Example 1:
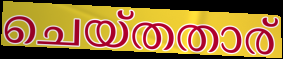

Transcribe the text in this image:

ചെയ്തതാര്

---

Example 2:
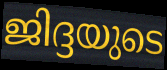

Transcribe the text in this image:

ജിദ്ദയുടെ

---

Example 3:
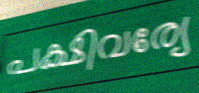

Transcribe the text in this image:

പക്ഷിവര്യേ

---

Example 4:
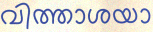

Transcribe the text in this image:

വിത്താശയാ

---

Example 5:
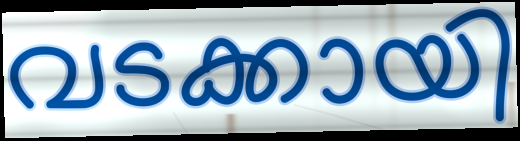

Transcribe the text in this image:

വടക്കായി